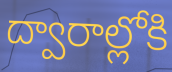
ద్వారాల్లోకి